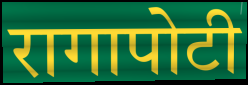
रागापोटी